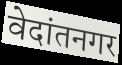
वेदांतनगर